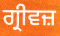
ਗ੍ਰੀਵਜ਼